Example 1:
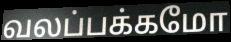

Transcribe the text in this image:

வலப்பக்கமோ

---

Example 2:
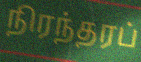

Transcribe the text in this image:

நிரந்தரப்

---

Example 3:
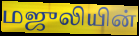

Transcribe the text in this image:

மஜுலியின்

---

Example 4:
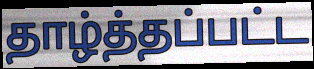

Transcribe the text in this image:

தாழ்த்தப்பட்ட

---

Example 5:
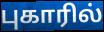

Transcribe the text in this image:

புகாரில்